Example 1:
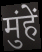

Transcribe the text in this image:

मुंहें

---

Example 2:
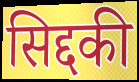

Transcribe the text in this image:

सिद्दकी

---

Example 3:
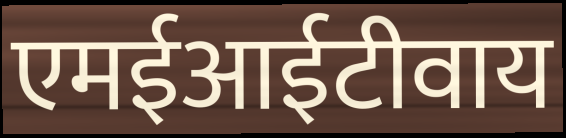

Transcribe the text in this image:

एमईआईटीवाय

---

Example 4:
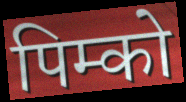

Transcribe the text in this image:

पिम्को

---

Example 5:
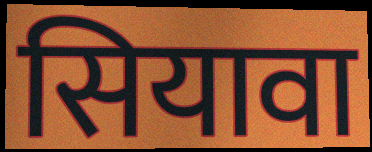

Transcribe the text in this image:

सियावा